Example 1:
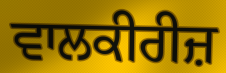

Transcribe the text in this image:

ਵਾਲਕੀਰੀਜ਼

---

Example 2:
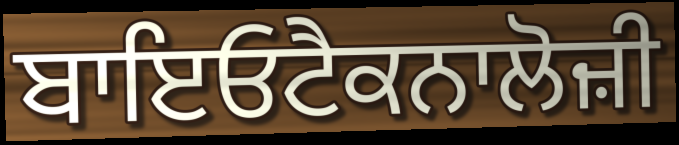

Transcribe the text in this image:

ਬਾਇਓਟੈਕਨਾਲੋਜ਼ੀ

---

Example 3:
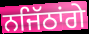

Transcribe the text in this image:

ਨਜਿੱਠਾਂਗੇ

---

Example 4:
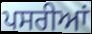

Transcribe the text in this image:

ਪਸਰੀਆਂ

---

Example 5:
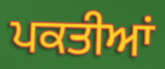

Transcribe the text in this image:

ਪਕਤੀਆਂ